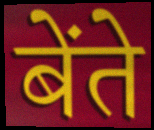
बेंते